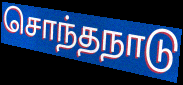
சொந்தநாடு